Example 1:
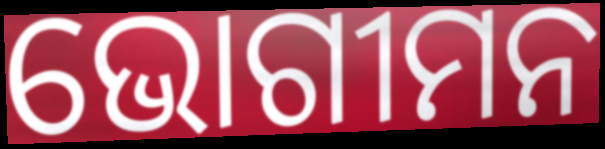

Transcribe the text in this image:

ଭୋଗୀମନ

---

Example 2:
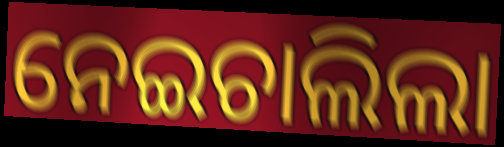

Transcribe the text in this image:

ନେଇଚାଲିଲା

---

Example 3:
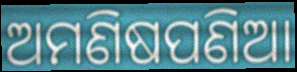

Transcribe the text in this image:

ଅମଣିଷପଣିଆ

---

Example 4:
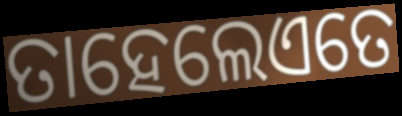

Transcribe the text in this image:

ତାହେଲେଏତେ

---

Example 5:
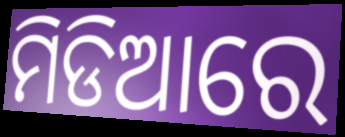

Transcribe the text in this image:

ମିଡିଆରେ